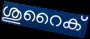
ശുറൈക്